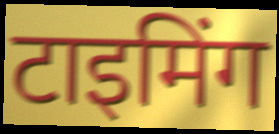
टाइमिंग